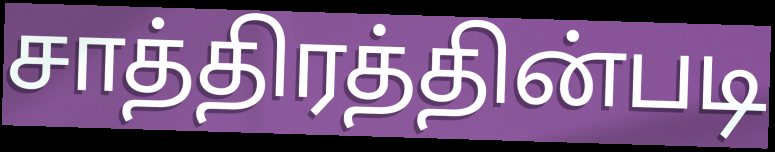
சாத்திரத்தின்படி